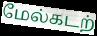
மேல்கடற்